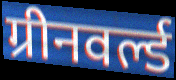
ग्रीनवर्ल्ड